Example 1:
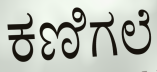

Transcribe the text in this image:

ಕಣಿಗಲೆ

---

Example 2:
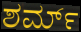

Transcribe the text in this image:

ಶರ್ಮ್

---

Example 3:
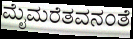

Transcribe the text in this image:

ಮೈಮರೆತವನಂತೆ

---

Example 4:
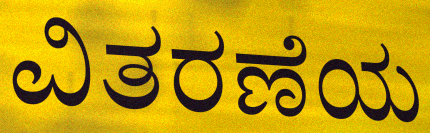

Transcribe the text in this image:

ವಿತರಣೆಯ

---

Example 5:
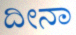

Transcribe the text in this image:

ದೀನಾ